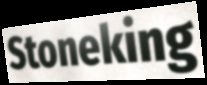
Stoneking